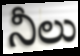
నీలు